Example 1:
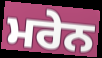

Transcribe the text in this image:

ਮਰੇਨ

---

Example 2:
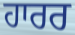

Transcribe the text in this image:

ਹਾਰਰ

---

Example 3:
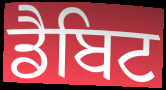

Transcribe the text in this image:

ਡੈਬਿਟ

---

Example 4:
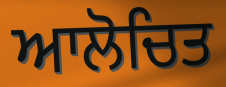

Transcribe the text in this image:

ਆਲੋਚਿਤ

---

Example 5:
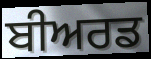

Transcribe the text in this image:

ਬੀਅਰਡ